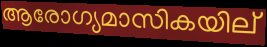
ആരോഗ്യമാസികയില്